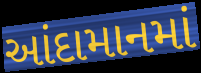
આંદામાનમાં